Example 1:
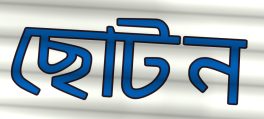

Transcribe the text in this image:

ছোটন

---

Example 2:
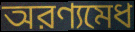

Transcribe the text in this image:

অরণ্যমেধ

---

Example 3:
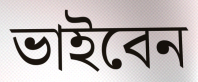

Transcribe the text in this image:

ভাইবেন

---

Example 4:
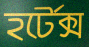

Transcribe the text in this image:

হর্টেক্স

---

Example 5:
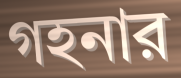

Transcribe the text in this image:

গহনার